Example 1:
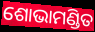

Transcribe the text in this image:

ଶୋଭାମଣ୍ଡିତ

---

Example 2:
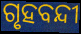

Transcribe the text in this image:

ଗୃହବନ୍ଦୀ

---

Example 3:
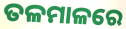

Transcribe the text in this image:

ତଳମାଳରେ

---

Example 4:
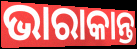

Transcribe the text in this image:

ଭାରାକାନ୍ତ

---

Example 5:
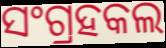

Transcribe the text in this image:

ସଂଗ୍ରହକଲ